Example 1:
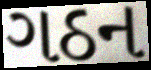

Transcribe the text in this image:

ગઠન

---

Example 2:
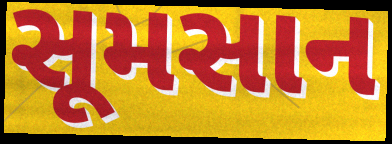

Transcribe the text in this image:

સૂમસાન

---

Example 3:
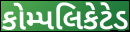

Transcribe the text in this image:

કોમ્પલિકેટેડ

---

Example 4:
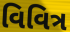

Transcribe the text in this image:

વિવિત્ર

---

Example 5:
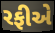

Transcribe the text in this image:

રફીએ